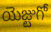
యెజ్టుగో